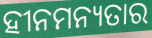
ହୀନମନ୍ୟତାର